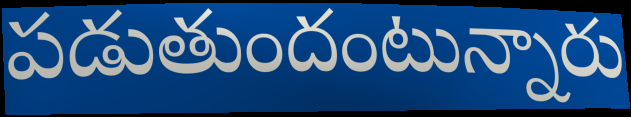
పడుతుందంటున్నారు